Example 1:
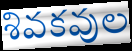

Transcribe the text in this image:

శివకవుల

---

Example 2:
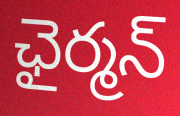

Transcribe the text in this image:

ఛైర్మన్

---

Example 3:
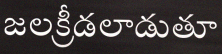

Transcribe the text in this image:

జలక్రీడలాడుతూ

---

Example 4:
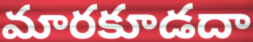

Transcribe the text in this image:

మారకూడదా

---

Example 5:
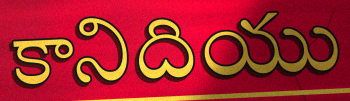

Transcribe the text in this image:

కానిదియు